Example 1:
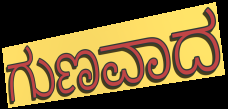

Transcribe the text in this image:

ಗುಣವಾದ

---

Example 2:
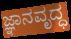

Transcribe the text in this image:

ಜ್ಞಾನವೃದ್ಧ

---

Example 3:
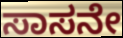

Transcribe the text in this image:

ಸಾಸನೇ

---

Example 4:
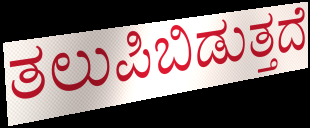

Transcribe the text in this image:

ತಲುಪಿಬಿಡುತ್ತದೆ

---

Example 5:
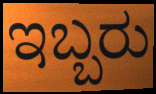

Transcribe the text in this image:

ಇಬ್ಬರು